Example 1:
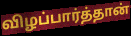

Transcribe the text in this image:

விழப்பார்த்தான்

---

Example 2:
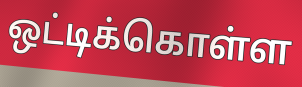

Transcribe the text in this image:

ஒட்டிக்கொள்ள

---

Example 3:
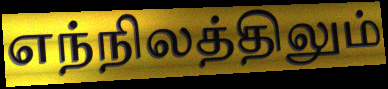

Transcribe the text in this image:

எந்நிலத்திலும்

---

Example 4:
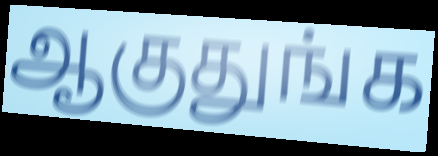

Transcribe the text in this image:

ஆகுதுங்க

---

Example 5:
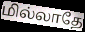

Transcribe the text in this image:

மில்லாதே